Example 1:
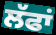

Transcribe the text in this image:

ਲੱਫਾਂ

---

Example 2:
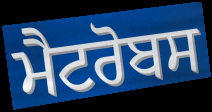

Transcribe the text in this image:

ਮੈਟਰੋਬਸ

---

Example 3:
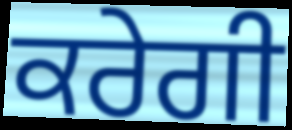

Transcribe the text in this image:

ਕਰੇਗੀ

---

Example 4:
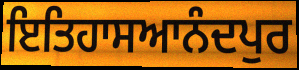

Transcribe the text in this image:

ਇਤਿਹਾਸਆਨੰਦਪੁਰ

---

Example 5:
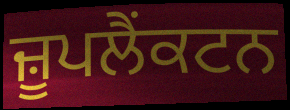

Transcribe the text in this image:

ਜ਼ੂਪਲੈਂਕਟਨ